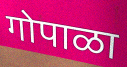
गोपाळा